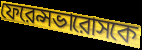
ফেরেন্সভারোসকে